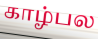
காழ்பல